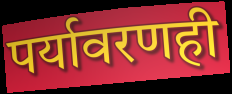
पर्यावरणही